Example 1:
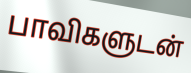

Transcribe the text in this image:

பாவிகளுடன்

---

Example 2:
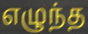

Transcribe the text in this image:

எழுந்த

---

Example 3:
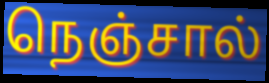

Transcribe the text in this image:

நெஞ்சால்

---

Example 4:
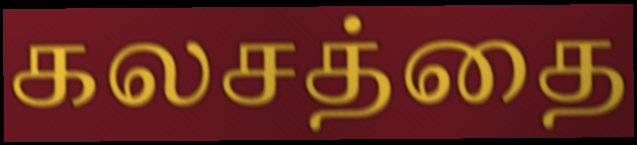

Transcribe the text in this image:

கலசத்தை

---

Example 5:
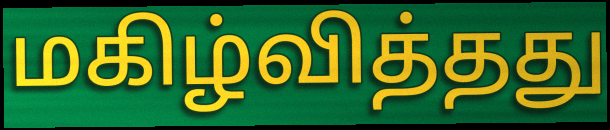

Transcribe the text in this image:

மகிழ்வித்தது